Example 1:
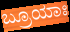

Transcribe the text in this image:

ಬ್ರೂಯಾಃ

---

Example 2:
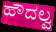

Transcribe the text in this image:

ಹೌದಲ್ವ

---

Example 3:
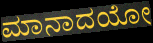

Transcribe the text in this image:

ಮಾನಾದಯೋ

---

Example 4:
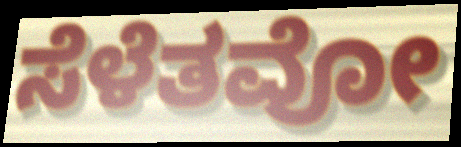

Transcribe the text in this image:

ಸೆಳೆತವೋ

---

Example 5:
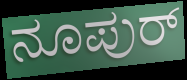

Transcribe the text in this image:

ನೂಪುರ್